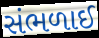
સંભળાઈ